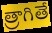
త్రాగితే